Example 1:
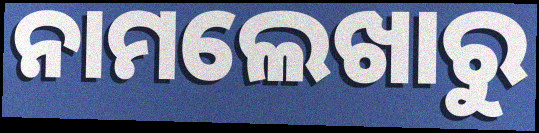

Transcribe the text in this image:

ନାମଲେଖାରୁ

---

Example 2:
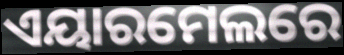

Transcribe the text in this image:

ଏୟାରମେଲରେ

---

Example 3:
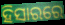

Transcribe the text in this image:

ହିସାରରେ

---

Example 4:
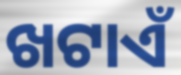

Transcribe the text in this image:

ଖଟାଏଁ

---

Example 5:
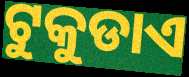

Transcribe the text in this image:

ଟୁକୁଡାଏ